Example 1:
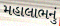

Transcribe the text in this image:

મહાલાભનું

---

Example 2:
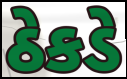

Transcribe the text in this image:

ઠેકડે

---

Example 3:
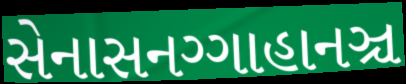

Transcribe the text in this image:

સેનાસનગ્ગાહાનઞ્ચ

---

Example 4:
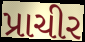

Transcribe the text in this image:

પ્રાચીર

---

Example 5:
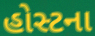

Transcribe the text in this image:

હોસ્ટના